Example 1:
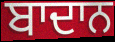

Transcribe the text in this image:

ਬਾਦਾਨ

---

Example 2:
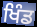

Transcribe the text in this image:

ਖਿੰਡ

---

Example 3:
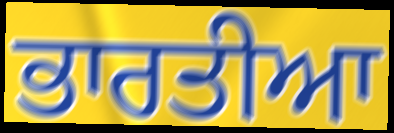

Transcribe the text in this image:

ਭਾਰਤੀਆ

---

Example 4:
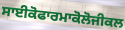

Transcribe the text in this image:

ਸਾਈਕੋਫਾਰਮਾਕੋਲੋਜੀਕਲ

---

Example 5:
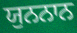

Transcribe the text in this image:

ਯੁਨਨਾਨ